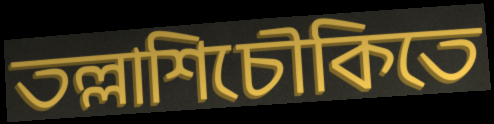
তল্লাশিচৌকিতে